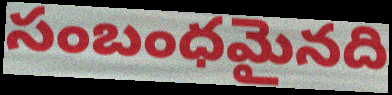
సంబంధమైనది